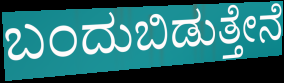
ಬಂದುಬಿಡುತ್ತೇನೆ